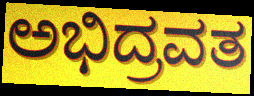
ಅಭಿದ್ರವತ